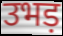
उभड़